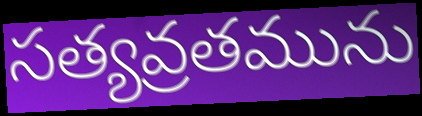
సత్యవ్రతమును